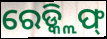
ରେଡ୍କ୍ଲିଫ୍